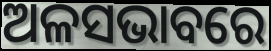
ଅଳସଭାବରେ